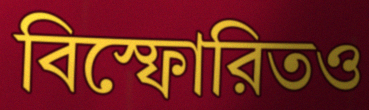
বিস্ফোরিতও